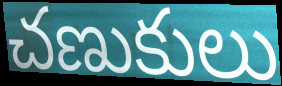
చణుకులు